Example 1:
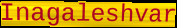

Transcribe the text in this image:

Inagaleshvar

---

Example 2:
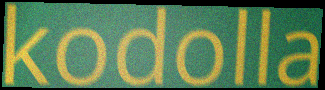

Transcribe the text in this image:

kodolla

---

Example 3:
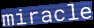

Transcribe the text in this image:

miracle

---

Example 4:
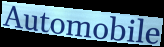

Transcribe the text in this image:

Automobile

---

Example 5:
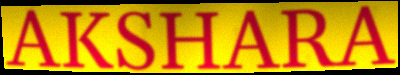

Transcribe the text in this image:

AKSHARA